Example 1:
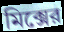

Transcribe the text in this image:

মিক্সের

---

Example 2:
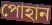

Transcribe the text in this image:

পোহান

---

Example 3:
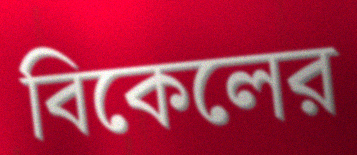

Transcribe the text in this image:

বিকেলের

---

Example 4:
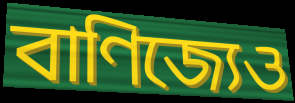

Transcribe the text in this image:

বাণিজ্যেও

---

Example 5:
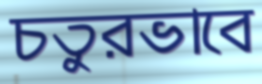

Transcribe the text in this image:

চতুরভাবে